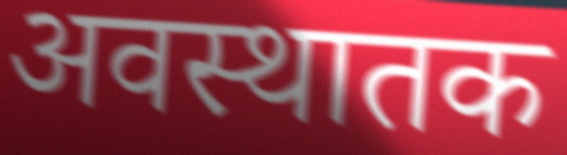
अवस्थातक